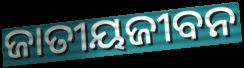
ଜାତୀୟଜୀବନ